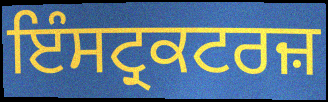
ਇੰਸਟ੍ਰਕਟਰਜ਼